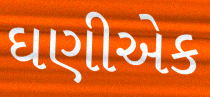
ઘણીએક